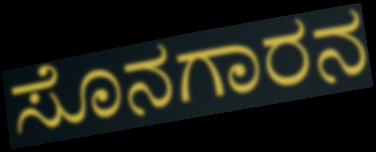
ಸೊನಗಾರನ